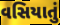
વસિયાતું